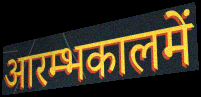
आरम्भकालमें